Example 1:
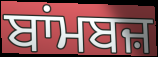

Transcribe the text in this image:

ਬਾਂਮਬਜ਼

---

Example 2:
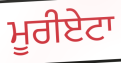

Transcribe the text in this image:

ਮੂਰੀਏਟਾ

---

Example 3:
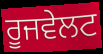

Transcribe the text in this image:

ਰੂਜਵੇਲਟ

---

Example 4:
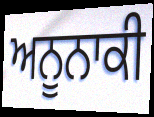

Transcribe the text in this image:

ਅਨੂਨਾਕੀ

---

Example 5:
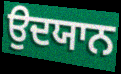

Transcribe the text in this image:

ਉਦਯਾਨ